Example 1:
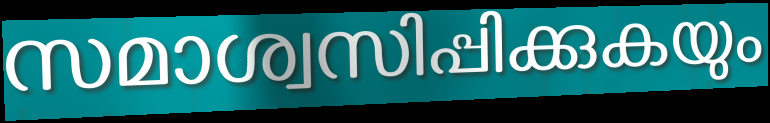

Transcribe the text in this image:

സമാശ്വസിപ്പിക്കുകയും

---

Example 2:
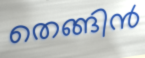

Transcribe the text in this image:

തെങ്ങിൻ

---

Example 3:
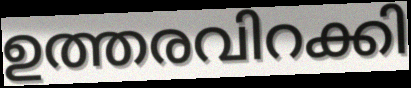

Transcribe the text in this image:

ഉത്തരവിറക്കി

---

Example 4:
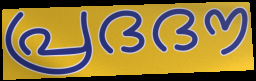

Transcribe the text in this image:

പ്രദദൗ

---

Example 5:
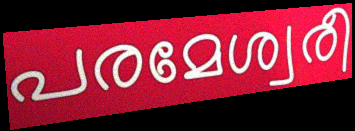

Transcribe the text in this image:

പരമേശ്വരീ